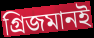
গ্রিজমানই